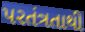
પરતંત્રતાથી